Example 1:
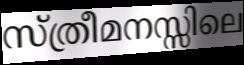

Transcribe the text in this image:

സ്ത്രീമനസ്സിലെ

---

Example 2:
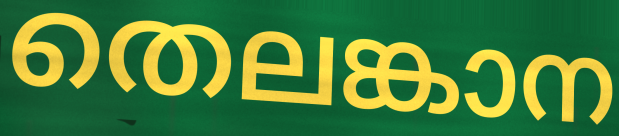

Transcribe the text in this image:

തെലങ്കാന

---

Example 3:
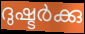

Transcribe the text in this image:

ദുഷ്ടർക്കു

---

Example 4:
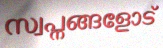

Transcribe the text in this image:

സ്വപ്നങ്ങളോട്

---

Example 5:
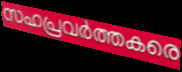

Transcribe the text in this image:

സഹപ്രവർത്തകരെ